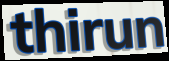
thirun